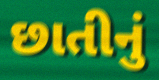
છાતીનું